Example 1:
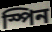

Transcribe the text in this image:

স্পিন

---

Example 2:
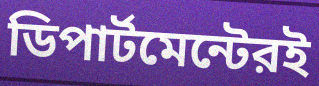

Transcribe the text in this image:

ডিপার্টমেন্টেরই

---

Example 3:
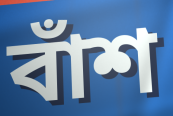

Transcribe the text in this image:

বাঁশ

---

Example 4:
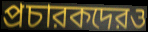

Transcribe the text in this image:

প্রচারকদেরও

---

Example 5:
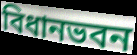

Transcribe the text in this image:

বিধানভবন